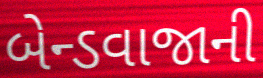
બેન્ડવાજાની